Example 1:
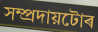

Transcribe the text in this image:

সম্প্ৰদায়টোৰ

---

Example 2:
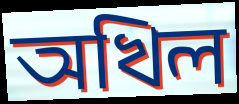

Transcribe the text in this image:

অখিল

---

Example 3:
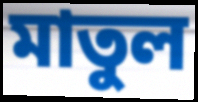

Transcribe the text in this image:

মাতুল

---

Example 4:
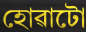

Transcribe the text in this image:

হোৱাটো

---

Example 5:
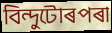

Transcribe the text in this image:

বিন্দুটোৰপৰা